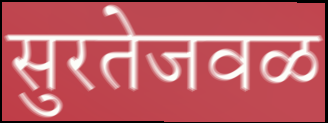
सुरतेजवळ